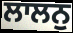
ਲਾਲਨੁ